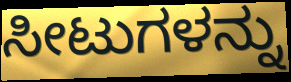
ಸೀಟುಗಳನ್ನು